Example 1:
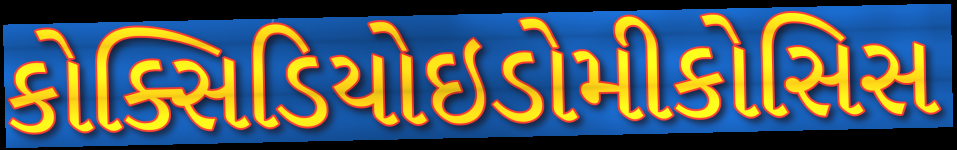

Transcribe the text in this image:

કોક્સિડિયોઇડોમીકોસિસ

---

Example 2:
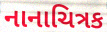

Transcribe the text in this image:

નાનાચિત્રક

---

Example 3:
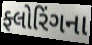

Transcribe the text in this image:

ફ્લોરિંગના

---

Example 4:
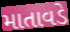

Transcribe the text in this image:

માતાવડે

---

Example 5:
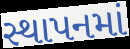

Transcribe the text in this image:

સ્થાપનમાં